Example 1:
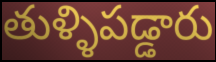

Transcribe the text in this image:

తుళ్ళిపడ్డారు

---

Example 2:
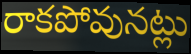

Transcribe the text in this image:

రాకపోవునట్లు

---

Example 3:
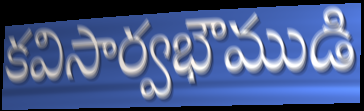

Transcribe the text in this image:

కవిసార్వభౌముడి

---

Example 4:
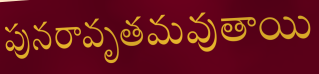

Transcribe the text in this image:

పునరావృతమవుతాయి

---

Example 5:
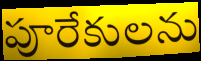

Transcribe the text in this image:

పూరేకులను